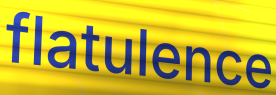
flatulence